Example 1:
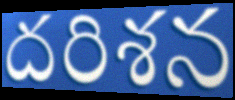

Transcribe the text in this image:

దరిశన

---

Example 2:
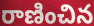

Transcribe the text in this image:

రాణించిన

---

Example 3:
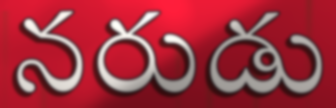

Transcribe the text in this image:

నరుడు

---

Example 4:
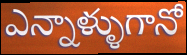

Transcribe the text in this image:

ఎన్నాళ్ళుగానో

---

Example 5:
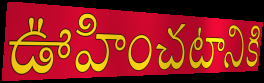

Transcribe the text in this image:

ఊహించటానికి